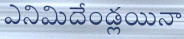
ఎనిమిదేండ్లయినా